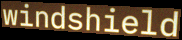
windshield